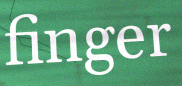
finger